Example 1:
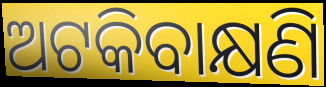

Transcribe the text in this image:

ଅଟକିବାକ୍ଷଣି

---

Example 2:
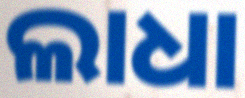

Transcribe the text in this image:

ଲାଧା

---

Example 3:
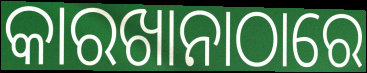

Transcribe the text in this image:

କାରଖାନାଠାରେ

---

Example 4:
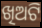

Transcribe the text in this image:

ଖିଅଟି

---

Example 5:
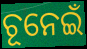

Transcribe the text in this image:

ଚୂନେଇଁ